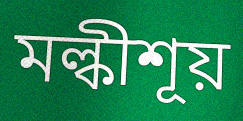
মল্কীশূয়